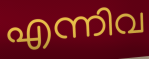
എന്നിവ